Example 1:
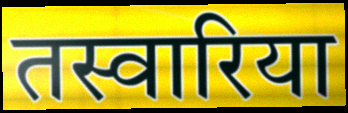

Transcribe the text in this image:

तस्वारिया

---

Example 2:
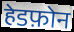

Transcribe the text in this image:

हेडफ़ोन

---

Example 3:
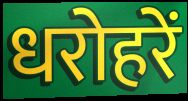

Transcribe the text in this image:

धरोहरें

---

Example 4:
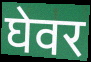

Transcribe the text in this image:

घेवर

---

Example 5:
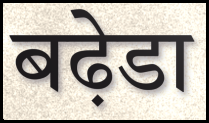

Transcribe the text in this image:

बढ़ेडा